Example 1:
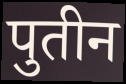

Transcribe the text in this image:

पुतीन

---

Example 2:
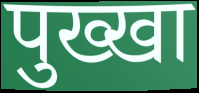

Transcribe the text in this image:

पुख्खा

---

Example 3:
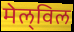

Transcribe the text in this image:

मेल्विल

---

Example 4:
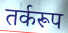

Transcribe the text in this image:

तर्करूप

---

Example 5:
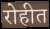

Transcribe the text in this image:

रोहीत